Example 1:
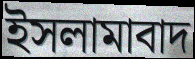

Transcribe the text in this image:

ইসলামাবাদ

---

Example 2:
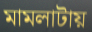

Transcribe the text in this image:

মামলাটায়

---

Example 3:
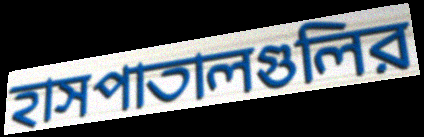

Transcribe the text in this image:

হাসপাতালগুলির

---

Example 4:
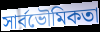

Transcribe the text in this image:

সার্বভৌমিকতা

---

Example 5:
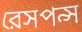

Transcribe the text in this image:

রেসপন্স